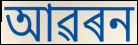
আৱৰন